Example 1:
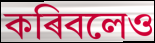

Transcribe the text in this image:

কৰিবলেও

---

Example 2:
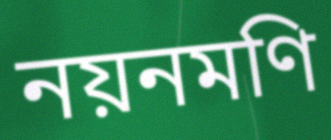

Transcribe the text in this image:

নয়নমণি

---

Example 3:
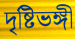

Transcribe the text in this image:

দৃষ্টিভঙ্গী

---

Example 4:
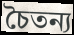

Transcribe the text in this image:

চৈতন্য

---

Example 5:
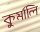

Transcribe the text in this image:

কুৰ্মালি